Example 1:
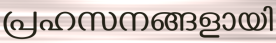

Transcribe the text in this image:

പ്രഹസനങ്ങളായി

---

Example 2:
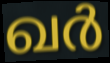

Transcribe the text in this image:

ഖർ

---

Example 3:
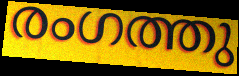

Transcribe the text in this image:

രംഗത്തു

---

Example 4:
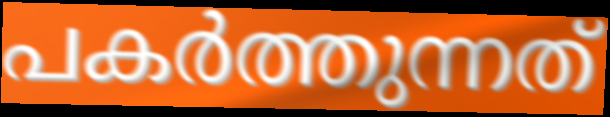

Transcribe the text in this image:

പകർത്തുന്നത്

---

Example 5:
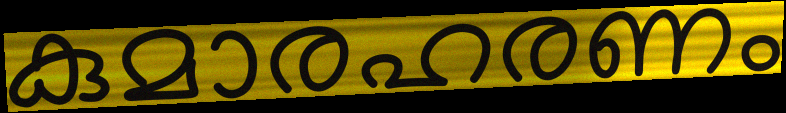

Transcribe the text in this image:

കുമാരഹരണം